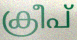
ക്രീപ്